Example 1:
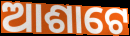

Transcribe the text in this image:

ଆଶାଟେ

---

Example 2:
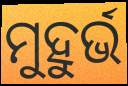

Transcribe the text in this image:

ମୁହୁର୍ଭ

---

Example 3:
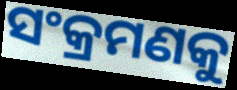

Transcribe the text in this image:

ସଂକ୍ରମଣକୁ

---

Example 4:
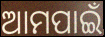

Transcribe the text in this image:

ଆମପାଇଁ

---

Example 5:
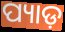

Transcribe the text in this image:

ପ୍ୟାଡ଼